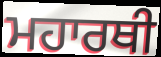
ਮਹਾਰਥੀ